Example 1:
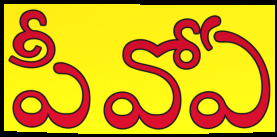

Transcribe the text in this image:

పీవోఏ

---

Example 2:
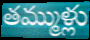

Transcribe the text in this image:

తమ్ముళ్లు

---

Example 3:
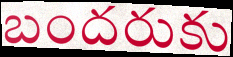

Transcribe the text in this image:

బందరుకు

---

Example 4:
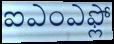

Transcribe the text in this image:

ఐఎంఎఫ్లో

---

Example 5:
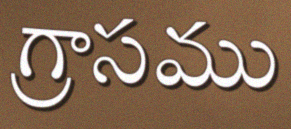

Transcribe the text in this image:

గ్రాసము